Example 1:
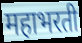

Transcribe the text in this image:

महाभरती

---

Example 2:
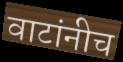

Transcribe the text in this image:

वाटांनीच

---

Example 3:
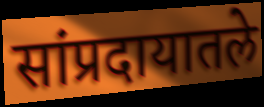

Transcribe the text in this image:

सांप्रदायातले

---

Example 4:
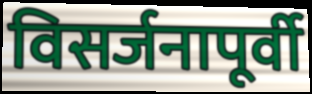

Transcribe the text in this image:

विसर्जनापूर्वी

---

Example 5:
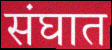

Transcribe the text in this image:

संघात